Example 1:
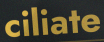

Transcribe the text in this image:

ciliate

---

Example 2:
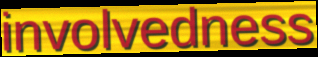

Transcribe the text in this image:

involvedness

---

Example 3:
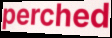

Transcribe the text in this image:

perched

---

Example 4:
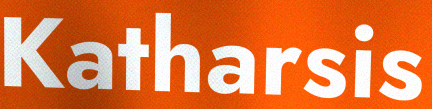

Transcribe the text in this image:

Katharsis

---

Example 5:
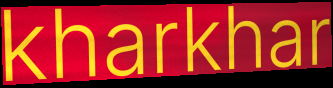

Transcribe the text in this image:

kharkhar